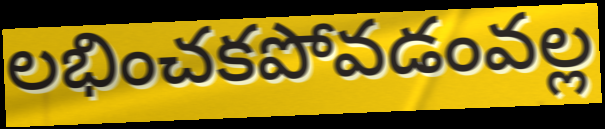
లభించకపోవడంవల్ల